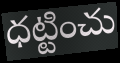
ధట్టించు